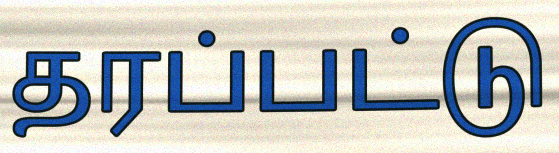
தரப்பட்டு